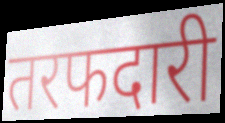
तरफदारी